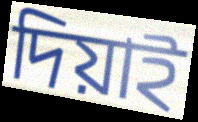
দিয়াই